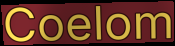
Coelom